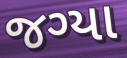
જગ્યા